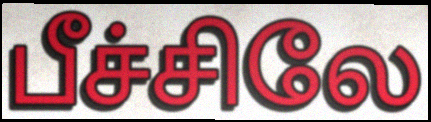
பீச்சிலே